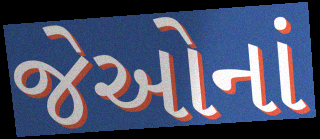
જેઓનાં